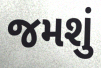
જમશું